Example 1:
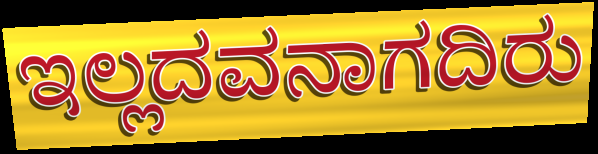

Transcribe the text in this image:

ಇಲ್ಲದವನಾಗದಿರು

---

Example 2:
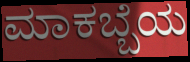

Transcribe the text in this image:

ಮಾಕಬ್ಬೆಯ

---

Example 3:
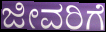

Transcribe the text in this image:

ಜೀವರಿಗೆ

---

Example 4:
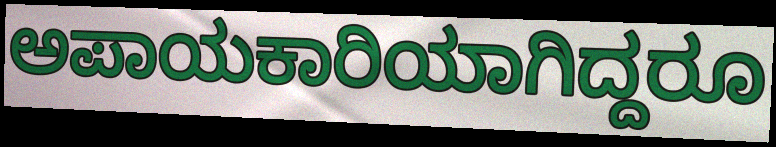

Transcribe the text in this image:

ಅಪಾಯಕಾರಿಯಾಗಿದ್ದರೂ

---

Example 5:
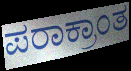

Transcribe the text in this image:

ಪರಾಕ್ರಾಂತ